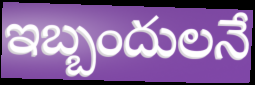
ఇబ్బందులనే